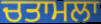
ਚਤਾਮਲਾ